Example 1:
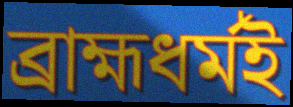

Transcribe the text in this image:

ব্রাহ্মধর্মই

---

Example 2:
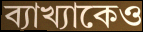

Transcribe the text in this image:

ব্যাখ্যাকেও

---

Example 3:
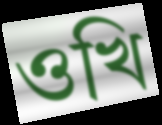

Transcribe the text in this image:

ওখি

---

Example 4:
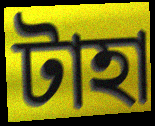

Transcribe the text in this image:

টাহা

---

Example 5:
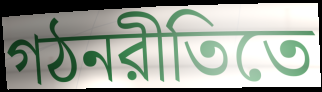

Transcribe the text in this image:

গঠনরীতিতে